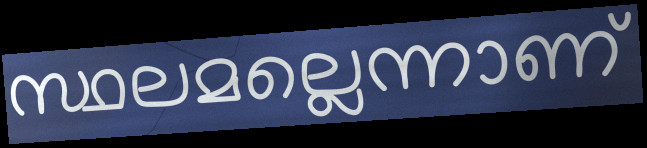
സ്ഥലമല്ലെന്നാണ്